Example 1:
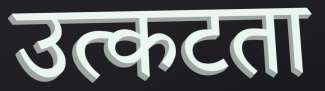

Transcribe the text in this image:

उत्कटता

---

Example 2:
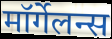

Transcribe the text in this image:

मॉर्गेलन्स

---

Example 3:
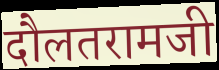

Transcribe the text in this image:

दौलतरामजी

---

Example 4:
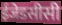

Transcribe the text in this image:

ईजेडसीसी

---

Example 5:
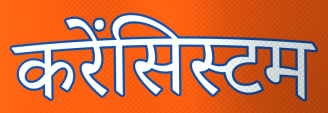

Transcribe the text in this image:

करेंसिस्टम